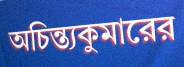
অচিন্ত্যকুমারের